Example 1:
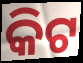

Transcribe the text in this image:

କିଟ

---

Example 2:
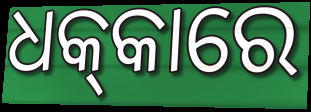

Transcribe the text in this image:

ଧକ୍‍କାରେ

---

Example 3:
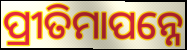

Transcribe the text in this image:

ପ୍ରୀତିମାପନ୍ନେ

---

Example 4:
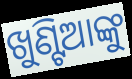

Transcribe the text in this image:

ଖୁଣ୍ଟିଆଙ୍କୁ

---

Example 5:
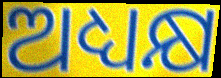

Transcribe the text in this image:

ଅଧ୍ୟକ୍ଷ